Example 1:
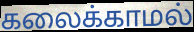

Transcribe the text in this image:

கலைக்காமல்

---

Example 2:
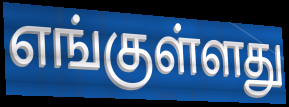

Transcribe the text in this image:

எங்குள்ளது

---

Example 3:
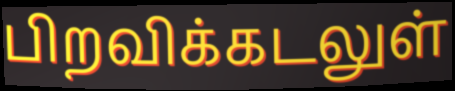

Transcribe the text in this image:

பிறவிக்கடலுள்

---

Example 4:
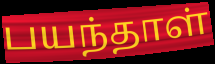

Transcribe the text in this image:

பயந்தாள்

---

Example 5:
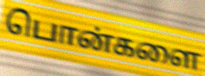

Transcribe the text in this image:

பொன்களை